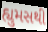
હ્યુમસથી